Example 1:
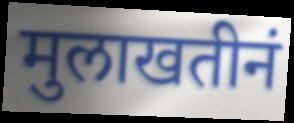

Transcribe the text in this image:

मुलाखतीनं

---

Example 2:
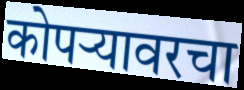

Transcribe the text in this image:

कोपऱ्यावरचा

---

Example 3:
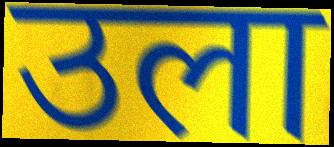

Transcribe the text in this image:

उला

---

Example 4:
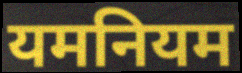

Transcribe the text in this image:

यमनियम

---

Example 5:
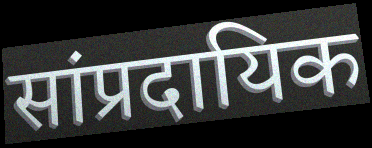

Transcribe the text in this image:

सांप्रदायिक